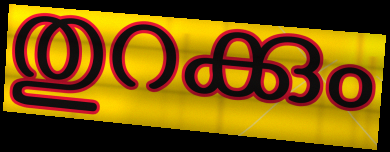
തുറക്കും